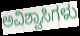
ಅವಿಶ್ವಾಸಿಗಳು